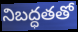
నిబద్ధతతో